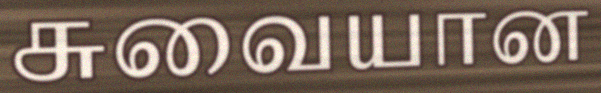
சுவையான